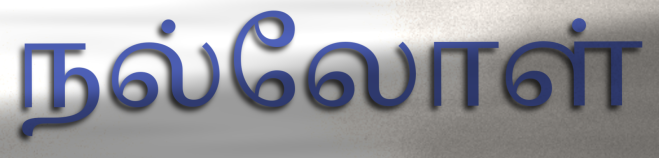
நல்லோள்